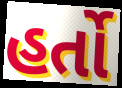
હર્તો